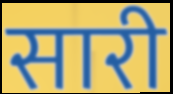
सारी